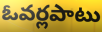
ఓవర్లపాటు